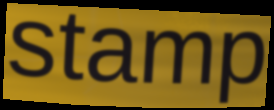
stamp